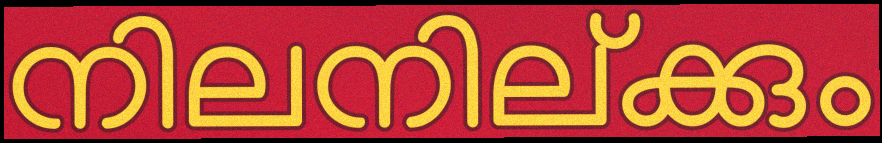
നിലനില്ക്കും